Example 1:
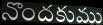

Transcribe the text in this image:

నొందకుము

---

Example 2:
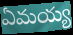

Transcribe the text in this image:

ఏమయ్య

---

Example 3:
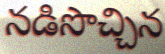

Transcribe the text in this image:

నడిసొచ్చిన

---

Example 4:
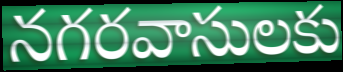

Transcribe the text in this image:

నగరవాసులకు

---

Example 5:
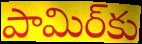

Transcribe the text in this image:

పామిర్‌కు